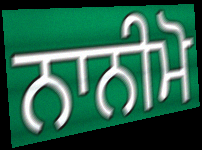
ਨਾਨੀਮੋ